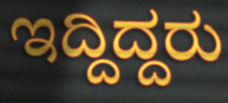
ಇದ್ದಿದ್ದರು